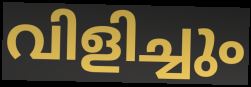
വിളിച്ചും